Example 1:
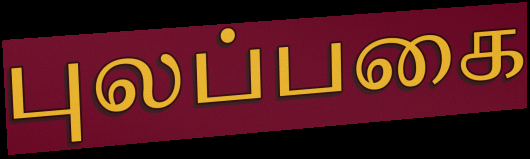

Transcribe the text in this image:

புலப்பகை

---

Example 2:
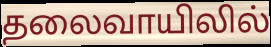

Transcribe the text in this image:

தலைவாயிலில்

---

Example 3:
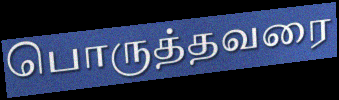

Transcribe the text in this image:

பொருத்தவரை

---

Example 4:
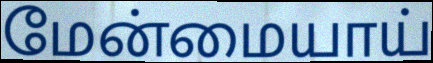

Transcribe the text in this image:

மேன்மையாய்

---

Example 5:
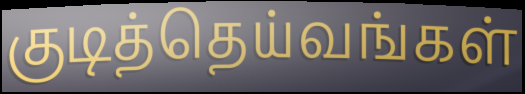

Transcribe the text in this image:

குடித்தெய்வங்கள்